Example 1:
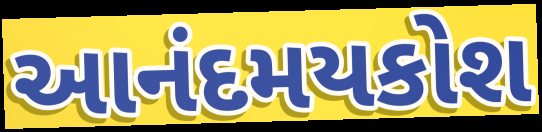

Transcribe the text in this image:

આનંદમયકોશ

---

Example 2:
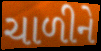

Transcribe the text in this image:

ચાળીને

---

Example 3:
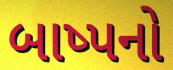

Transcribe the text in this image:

બાષ્પનો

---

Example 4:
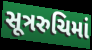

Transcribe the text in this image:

સૂત્રરુચિમાં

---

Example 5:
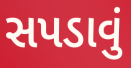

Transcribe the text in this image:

સપડાવું